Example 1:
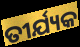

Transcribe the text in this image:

ତୀର୍ଯ୍ୟକ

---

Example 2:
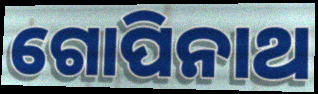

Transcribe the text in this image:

ଗୋପିନାଥ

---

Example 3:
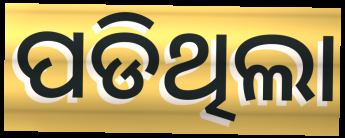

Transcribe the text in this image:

ପଡିଥିଲା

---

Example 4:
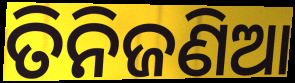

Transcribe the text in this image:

ତିନିଜଣିଆ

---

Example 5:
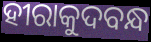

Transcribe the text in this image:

ହୀରାକୁଦବନ୍ଧ